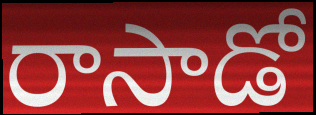
రాసాడో